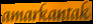
amarkantak